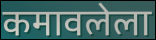
कमावलेला